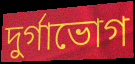
দুর্গাভোগ